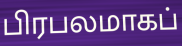
பிரபலமாகப்